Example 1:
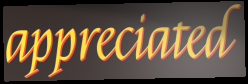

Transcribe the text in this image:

appreciated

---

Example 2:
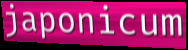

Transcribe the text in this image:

japonicum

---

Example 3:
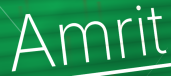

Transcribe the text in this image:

Amrit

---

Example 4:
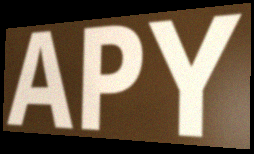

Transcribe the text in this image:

APY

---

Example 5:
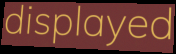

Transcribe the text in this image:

displayed